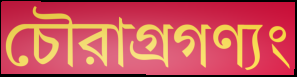
চৌরাগ্রগণ্যং